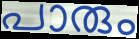
പാരും